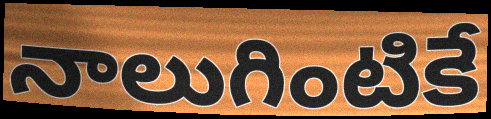
నాలుగింటికే